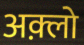
अक़्लो